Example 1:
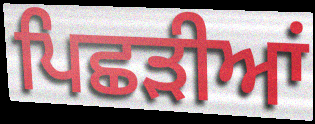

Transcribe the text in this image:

ਪਿਛੜੀਆਂ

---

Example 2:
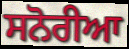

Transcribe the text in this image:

ਸਨੋਰੀਆ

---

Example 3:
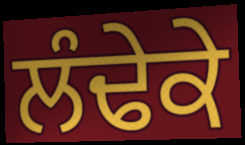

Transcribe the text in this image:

ਲੰਢੇਕੇ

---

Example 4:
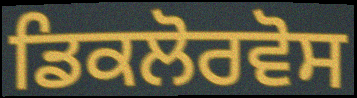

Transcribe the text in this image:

ਡਿਕਲੋਰਵੋਸ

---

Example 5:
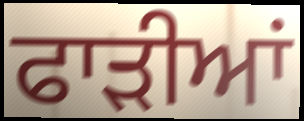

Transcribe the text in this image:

ਫਾੜੀਆਂ